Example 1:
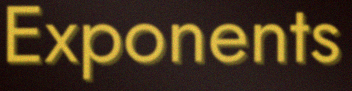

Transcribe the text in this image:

Exponents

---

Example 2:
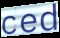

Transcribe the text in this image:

ced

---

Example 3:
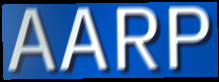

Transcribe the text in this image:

AARP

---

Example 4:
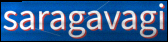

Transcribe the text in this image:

saragavagi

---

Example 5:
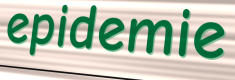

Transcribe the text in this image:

epidemie